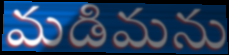
మడిమను